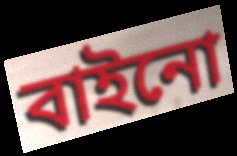
বাইনো